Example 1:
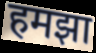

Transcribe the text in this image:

हमझा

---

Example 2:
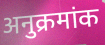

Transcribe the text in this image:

अनुक्रमांक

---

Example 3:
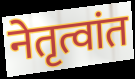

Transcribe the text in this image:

नेतृत्वांत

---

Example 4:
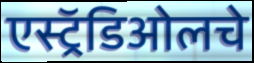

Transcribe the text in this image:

एस्ट्रॅडिओलचे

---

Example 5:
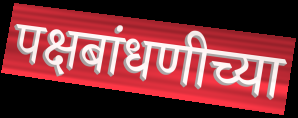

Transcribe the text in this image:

पक्षबांधणीच्या